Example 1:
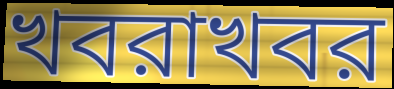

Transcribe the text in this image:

খবরাখবর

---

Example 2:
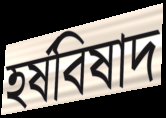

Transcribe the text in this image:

হর্ষবিষাদ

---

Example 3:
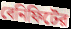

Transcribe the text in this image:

বেনিফিটের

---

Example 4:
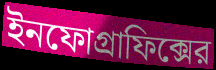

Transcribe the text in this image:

ইনফোগ্রাফিক্সের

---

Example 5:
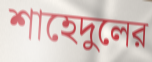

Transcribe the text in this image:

শাহেদুলের